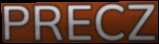
PRECZ